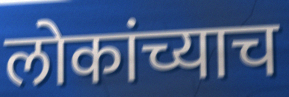
लोकांच्याच